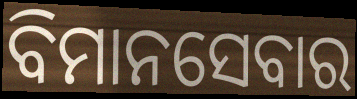
ବିମାନସେବାର